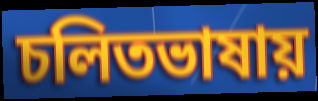
চলিতভাষায়